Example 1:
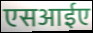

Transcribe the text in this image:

एसआईए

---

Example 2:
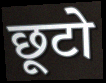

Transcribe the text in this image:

छूटो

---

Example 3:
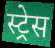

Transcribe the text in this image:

स्ट्रेस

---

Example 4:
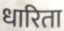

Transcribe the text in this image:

धारिता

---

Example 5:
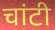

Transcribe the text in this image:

चांटी